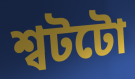
শ্বটটো